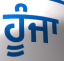
ਹੂੰਜਾ